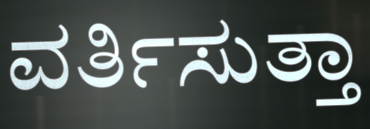
ವರ್ತಿಸುತ್ತಾ